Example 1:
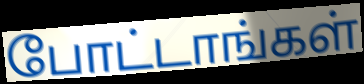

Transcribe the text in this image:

போட்டாங்கள்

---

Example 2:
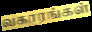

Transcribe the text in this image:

வகாரங்கள்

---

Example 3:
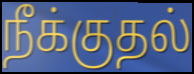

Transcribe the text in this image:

நீக்குதல்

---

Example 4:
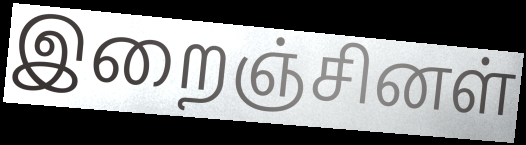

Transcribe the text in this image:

இறைஞ்சினள்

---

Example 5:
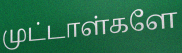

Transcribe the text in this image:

முட்டாள்களே